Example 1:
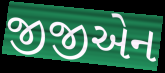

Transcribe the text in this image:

જીજીએન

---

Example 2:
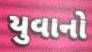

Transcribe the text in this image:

યુવાનો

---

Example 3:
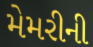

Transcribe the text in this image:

મેમરીની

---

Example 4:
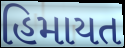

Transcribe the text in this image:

હિમાયત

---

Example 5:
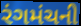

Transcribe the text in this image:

રંગમંચની